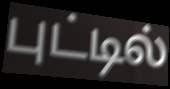
புட்டில்